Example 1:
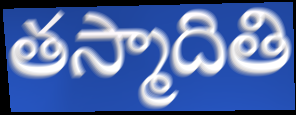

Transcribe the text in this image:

తస్మాదితి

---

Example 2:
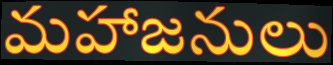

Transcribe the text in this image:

మహాజనులు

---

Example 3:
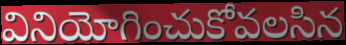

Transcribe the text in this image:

వినియోగించుకోవలసిన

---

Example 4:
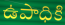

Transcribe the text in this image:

ఉపాధికి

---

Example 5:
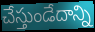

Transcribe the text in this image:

చేస్తుండేదాన్ని